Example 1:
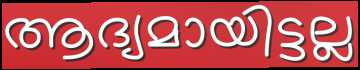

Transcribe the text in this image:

ആദ്യമായിട്ടല്ല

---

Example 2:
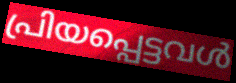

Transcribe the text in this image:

പ്രിയപ്പെട്ടവൾ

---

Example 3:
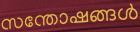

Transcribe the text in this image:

സന്തോഷങ്ങൾ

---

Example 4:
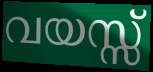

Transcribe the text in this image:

വയസ്സ്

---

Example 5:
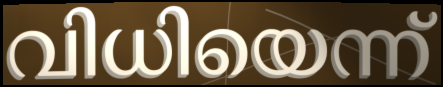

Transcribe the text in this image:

വിധിയെന്ന്